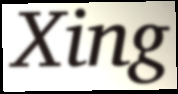
Xing